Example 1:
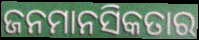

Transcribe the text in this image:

ଜନମାନସିକତାର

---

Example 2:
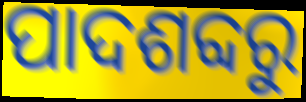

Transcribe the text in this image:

ପାଦଶବ୍ଦରୁ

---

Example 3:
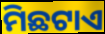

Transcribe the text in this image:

ମିଛଟାଏ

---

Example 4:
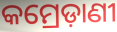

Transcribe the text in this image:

କମ୍ରେଡ଼ାଣୀ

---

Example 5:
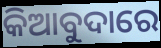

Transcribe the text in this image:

କିଆବୁଦାରେ